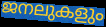
ജനലുകളും